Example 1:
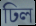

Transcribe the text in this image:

ঢিল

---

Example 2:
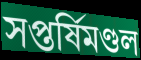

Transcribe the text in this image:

সপ্তর্ষিমণ্ডল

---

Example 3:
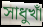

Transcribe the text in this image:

সাধুখাঁ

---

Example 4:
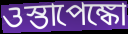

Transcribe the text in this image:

ওস্তাপেঙ্কো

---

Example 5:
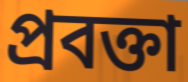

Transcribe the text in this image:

প্রবক্তা